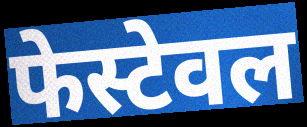
फेस्टेवल